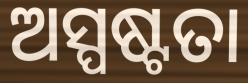
ଅସ୍ପଷ୍ଟତା